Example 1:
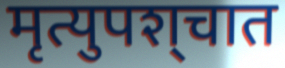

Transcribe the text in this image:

मृत्युपश्चात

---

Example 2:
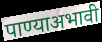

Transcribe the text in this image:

पाण्याअभावी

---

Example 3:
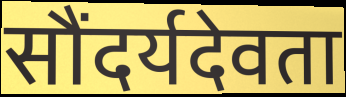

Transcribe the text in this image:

सौंदर्यदेवता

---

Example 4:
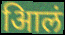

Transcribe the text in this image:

आिलं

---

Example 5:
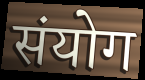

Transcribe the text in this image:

संयोग